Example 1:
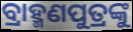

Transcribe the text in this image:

ବ୍ରାହ୍ମଣପୁତ୍ରଙ୍କୁ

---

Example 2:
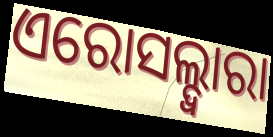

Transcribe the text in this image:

ଏରୋସଲ୍ଦ୍ୱାରା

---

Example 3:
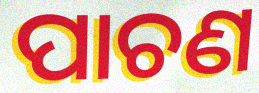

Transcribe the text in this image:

ପାଚଣ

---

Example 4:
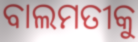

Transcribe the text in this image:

ବାଲମତୀକୁ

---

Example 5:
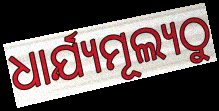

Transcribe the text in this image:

ଧାର୍ଯ୍ୟମୂଲ୍ୟଠୁ